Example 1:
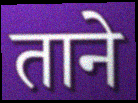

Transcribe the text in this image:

ताने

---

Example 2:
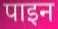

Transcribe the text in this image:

पाइन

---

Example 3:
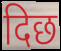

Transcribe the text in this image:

दिछ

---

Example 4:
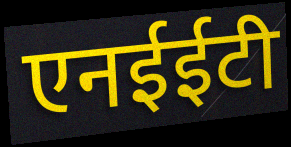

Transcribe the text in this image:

एनईईटी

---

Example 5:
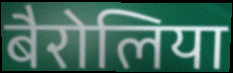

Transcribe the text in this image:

बैरोलिया